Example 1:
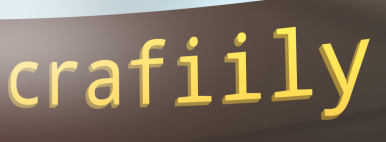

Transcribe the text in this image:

crafiily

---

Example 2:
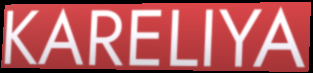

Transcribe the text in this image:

KARELIYA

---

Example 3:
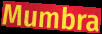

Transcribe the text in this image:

Mumbra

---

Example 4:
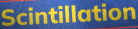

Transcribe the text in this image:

Scintillation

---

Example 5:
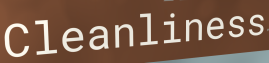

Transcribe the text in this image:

Cleanliness